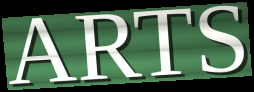
ARTS